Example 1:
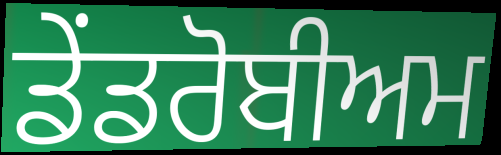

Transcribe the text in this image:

ਡੇਂਡਰੋਬੀਅਮ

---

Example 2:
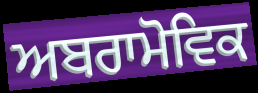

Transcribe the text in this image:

ਅਬਰਾਮੋਵਿਕ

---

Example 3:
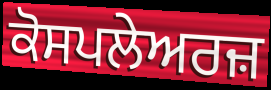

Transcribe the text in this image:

ਕੋਸਪਲੇਅਰਜ਼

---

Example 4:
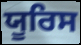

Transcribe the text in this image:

ਯੂਰਿਸ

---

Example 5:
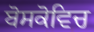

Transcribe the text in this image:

ਬੋਸਕੋਵਿਚ